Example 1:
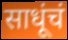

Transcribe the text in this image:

साधूंचं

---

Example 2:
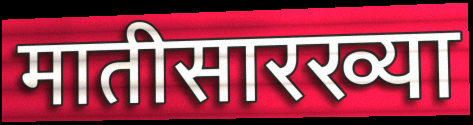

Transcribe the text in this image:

मातीसारख्या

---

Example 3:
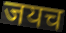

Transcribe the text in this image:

जयच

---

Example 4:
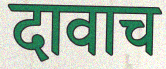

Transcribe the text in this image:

दावाच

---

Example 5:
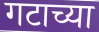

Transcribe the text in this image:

गटाच्या